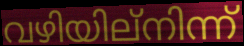
വഴിയില്നിന്ന്